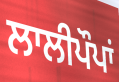
ਲਾਲੀਪੌਪਾਂ